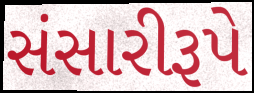
સંસારીરૂપે